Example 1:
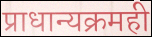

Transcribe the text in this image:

प्राधान्यक्रमही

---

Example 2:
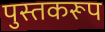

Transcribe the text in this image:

पुस्तकरूप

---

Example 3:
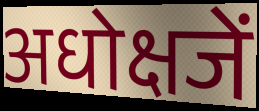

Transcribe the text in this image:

अधोक्षजें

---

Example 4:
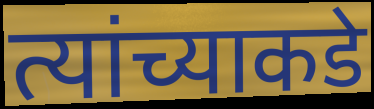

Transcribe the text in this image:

त्यांच्याकडे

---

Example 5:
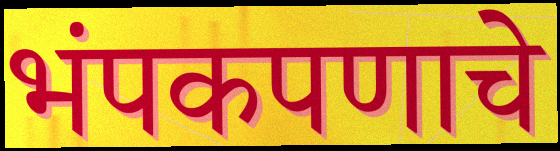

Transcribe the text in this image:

भंपकपणाचे